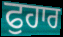
ਫੁਹਾਰ